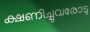
ക്ഷണിച്ചുവരോടു